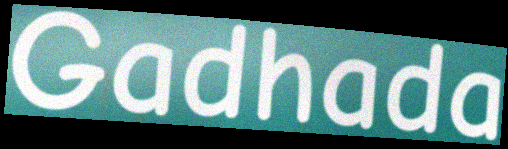
Gadhada